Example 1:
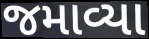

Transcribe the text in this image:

જમાવ્યા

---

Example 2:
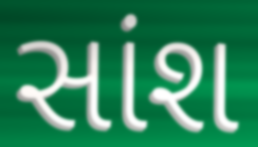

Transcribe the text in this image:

સાંશ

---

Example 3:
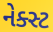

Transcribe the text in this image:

નેક્સ્ટ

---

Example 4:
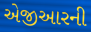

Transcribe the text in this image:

એજીઆરની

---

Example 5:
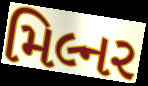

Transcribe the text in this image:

મિલ્નર